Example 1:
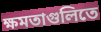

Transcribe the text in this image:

ক্ষমতাগুলিতে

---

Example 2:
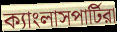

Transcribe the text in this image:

ক্যাংলাসপার্টিরা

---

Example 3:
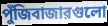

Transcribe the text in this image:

পুঁজিবাজারগুলো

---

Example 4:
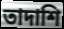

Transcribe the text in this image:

তাদাশি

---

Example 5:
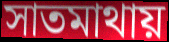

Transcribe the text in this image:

সাতমাথায়